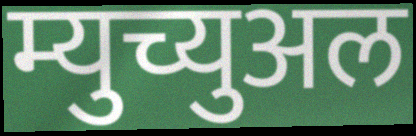
म्युच्युअल